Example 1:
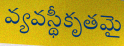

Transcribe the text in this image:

వ్యవస్థీకృతమై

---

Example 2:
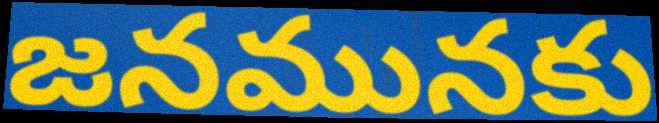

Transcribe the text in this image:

జనమునకు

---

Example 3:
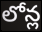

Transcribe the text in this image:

లోన్ల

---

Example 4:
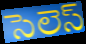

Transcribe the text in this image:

సెలెస్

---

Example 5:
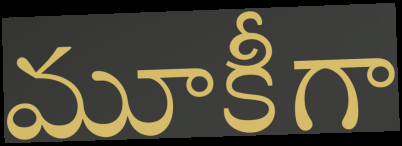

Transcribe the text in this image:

మూకీగా